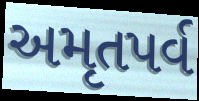
અમૃતપર્વ